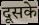
दूसके